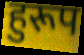
हुरूप